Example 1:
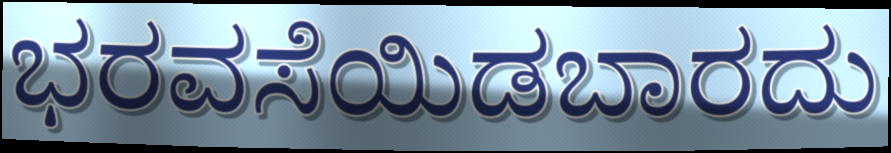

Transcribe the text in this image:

ಭರವಸೆಯಿಡಬಾರದು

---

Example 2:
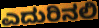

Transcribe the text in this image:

ಎದುರಿನಲಿ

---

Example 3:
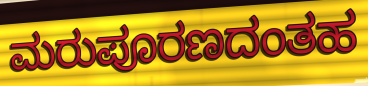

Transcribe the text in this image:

ಮರುಪೂರಣದಂತಹ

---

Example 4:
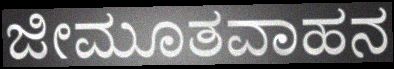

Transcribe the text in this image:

ಜೀಮೂತವಾಹನ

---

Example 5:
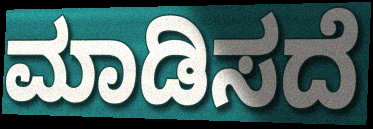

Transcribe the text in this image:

ಮಾಡಿಸದೆ